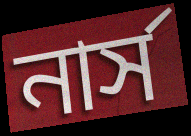
নার্স